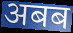
अबब